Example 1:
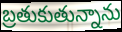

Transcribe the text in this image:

బ్రతుకుతున్నాను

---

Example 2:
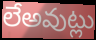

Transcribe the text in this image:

లేఅవుట్లు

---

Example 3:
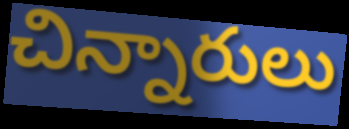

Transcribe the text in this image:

చిన్నారులు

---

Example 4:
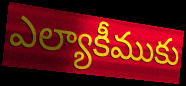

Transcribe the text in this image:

ఎల్యాకీముకు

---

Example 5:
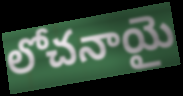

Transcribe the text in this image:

లోచనాయై